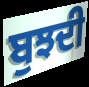
ਬੁਝਦੀ